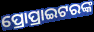
ପ୍ରୋପ୍ରାଇଟରଙ୍କ